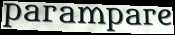
parampare